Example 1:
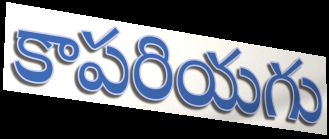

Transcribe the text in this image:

కాపరియగు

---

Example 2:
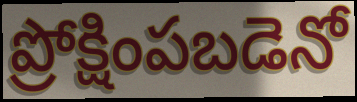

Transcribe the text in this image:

ప్రోక్షింపబడెనో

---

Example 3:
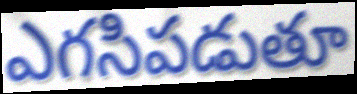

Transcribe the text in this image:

ఎగసిపడుతూ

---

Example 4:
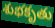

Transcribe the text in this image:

శుభకృతు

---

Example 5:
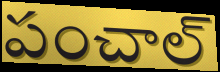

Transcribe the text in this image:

పంచాల్